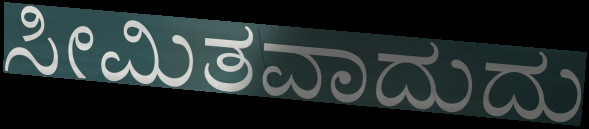
ಸೀಮಿತವಾದುದು